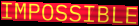
IMPOSSIBLE